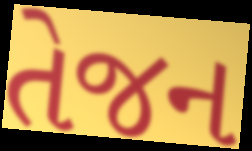
તેજન